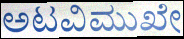
ಅಟವಿಮುಖೇ